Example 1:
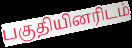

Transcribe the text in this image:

பகுதியினரிடம்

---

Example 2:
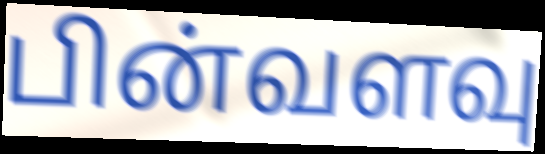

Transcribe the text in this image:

பின்வளவு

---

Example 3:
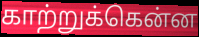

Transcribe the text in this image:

காற்றுக்கென்ன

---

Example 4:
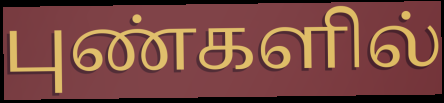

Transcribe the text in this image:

புண்களில்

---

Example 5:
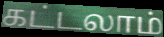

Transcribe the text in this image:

கட்டலாம்